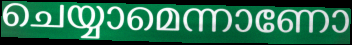
ചെയ്യാമെന്നാണോ